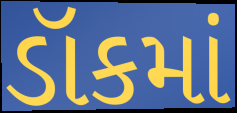
ડૉકમાં